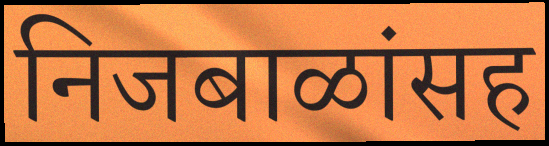
निजबाळांसह